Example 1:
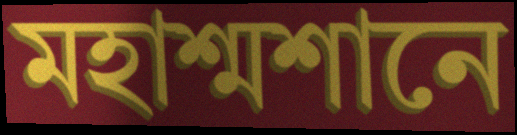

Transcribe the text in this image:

মহাশ্মশানে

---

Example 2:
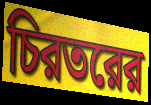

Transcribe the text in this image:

চিরতরের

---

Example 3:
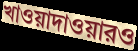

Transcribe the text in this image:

খাওয়াদাওয়ারও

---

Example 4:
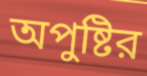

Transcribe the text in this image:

অপুষ্টির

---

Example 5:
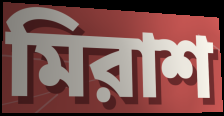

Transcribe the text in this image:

মিরাশ